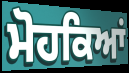
ਮੋਹਕਿਆਂ